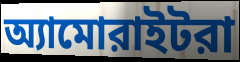
অ্যামোরাইটরা